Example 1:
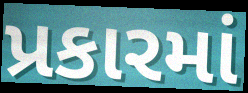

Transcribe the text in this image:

પ્રકારમાં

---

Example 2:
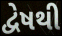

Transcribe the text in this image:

દ્વેષથી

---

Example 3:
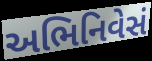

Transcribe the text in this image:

અભિનિવેસં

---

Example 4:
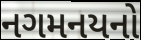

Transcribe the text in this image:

નગમનયનો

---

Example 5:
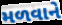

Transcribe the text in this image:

મળવાને